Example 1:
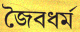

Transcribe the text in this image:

জৈবধর্ম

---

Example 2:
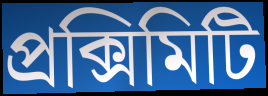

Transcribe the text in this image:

প্রক্সিমিটি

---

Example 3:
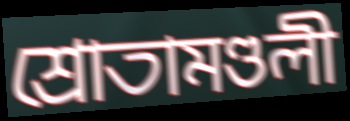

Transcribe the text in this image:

শ্রোতামণ্ডলী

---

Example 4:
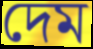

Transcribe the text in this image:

দেম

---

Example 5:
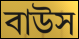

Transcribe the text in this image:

বাউস